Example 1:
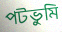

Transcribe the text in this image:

পটভুমি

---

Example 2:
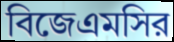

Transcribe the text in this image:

বিজেএমসির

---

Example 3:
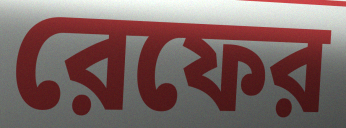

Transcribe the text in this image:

রেফের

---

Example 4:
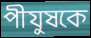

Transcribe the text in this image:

পীযুষকে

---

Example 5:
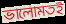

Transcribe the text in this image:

ভালোমতই